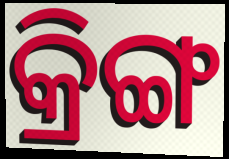
କ୍ରିଙ୍ଗ